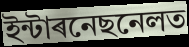
ইন্টাৰনেছনেলত